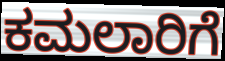
ಕಮಲಾರಿಗೆ